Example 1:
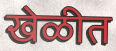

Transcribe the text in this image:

खेळीत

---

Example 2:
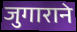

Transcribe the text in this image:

जुगाराने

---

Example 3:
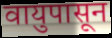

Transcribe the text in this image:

वायुपासून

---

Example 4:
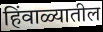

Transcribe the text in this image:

हिंवाळ्यातील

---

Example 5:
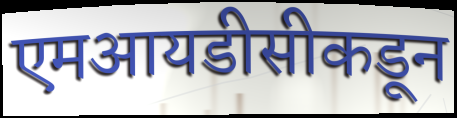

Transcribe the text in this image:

एमआयडीसीकडून